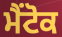
ਮੈਂਟੋਕ